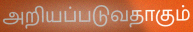
அறியப்படுவதாகும்